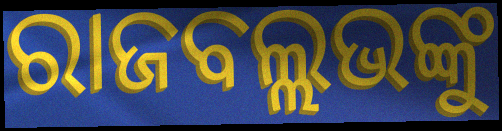
ରାଜବଲ୍ଲଭଙ୍କୁ